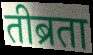
तीब्रता